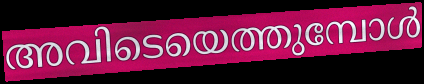
അവിടെയെത്തുമ്പോൾ